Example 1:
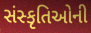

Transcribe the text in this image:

સંસ્કૃતિઓની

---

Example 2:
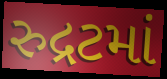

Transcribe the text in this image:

રુદ્રટમાં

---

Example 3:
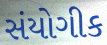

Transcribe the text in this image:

સંયોગીક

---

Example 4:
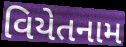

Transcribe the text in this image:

વિયેતનામ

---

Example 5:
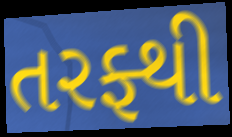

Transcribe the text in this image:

તરફ્થી